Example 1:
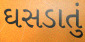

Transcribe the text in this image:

ઘસડાતું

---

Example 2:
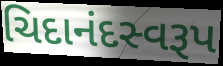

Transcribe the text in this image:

ચિદાનંદસ્વરૂપ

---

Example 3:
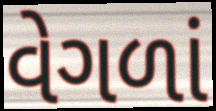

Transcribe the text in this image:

વેગળાં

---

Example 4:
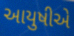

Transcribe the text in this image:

આયુષીએ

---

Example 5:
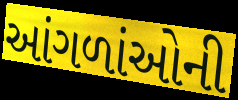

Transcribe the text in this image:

આંગળાંઓની